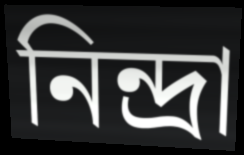
নিন্দ্ৰা